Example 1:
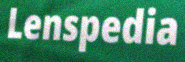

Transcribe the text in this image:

Lenspedia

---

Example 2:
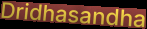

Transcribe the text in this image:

Dridhasandha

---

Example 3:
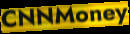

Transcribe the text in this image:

CNNMoney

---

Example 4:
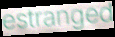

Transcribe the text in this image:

estranged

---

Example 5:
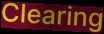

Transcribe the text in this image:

Clearing